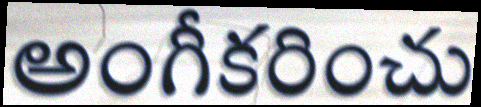
అంగీకరించు